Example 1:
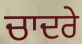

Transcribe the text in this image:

ਚਾਦਰੇ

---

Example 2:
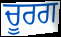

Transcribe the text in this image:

ਚੂਰਗ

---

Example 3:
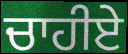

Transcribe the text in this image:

ਚਾਹੀਏ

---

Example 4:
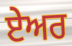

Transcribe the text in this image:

ਏੇਅਰ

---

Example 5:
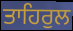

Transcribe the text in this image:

ਤਾਹਿਰੁਲ